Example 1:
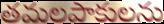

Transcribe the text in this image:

తమలపాకులను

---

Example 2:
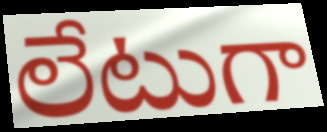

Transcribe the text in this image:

లేటుగా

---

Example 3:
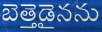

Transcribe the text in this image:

బెత్తెడైనను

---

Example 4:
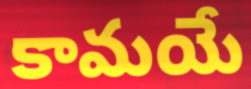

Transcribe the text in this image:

కామయే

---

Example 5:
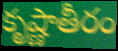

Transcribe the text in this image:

కృష్ణాతీరం